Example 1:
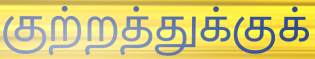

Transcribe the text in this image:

குற்றத்துக்குக்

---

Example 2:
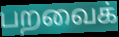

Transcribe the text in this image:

பறவைக்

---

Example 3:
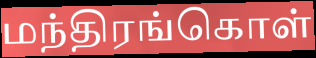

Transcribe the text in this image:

மந்திரங்கொள்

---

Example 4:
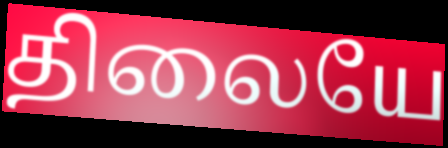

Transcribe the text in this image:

திலையே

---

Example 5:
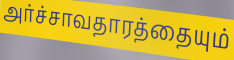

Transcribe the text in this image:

அர்ச்சாவதாரத்தையும்